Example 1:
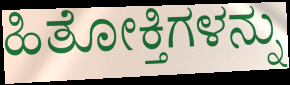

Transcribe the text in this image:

ಹಿತೋಕ್ತಿಗಳನ್ನು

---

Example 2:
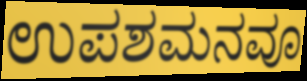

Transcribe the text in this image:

ಉಪಶಮನವೂ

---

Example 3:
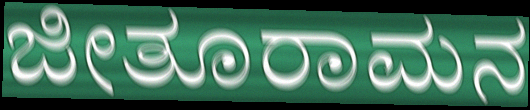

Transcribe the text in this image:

ಜೀತೂರಾಮನ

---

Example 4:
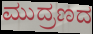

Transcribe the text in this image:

ಮುದ್ರಣದ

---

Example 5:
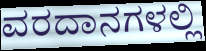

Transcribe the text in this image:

ವರದಾನಗಳಲ್ಲಿ